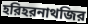
হরিহরনাথজির